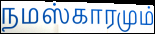
நமஸ்காரமும்